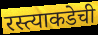
रस्त्याकडेची